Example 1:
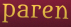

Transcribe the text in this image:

paren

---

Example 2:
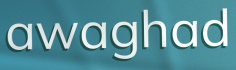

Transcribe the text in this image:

awaghad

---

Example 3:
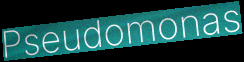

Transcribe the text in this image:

Pseudomonas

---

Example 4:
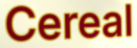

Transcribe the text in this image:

Cereal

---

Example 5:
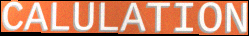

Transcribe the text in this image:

CALULATION